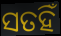
ସତହିଁ